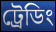
ট্রেডিং